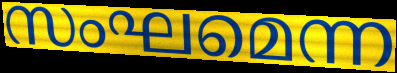
സംഘമെന്ന